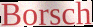
Borsch